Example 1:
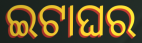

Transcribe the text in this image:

ଇଟାଘର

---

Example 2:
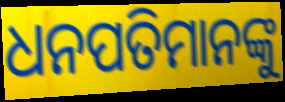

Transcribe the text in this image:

ଧନପତିମାନଙ୍କୁ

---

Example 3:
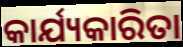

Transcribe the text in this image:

କାର୍ଯ୍ୟକାରିତା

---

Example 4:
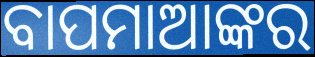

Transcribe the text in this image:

ବାପମାଆଙ୍କର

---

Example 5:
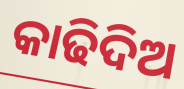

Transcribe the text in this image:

କାଢିଦିଅ